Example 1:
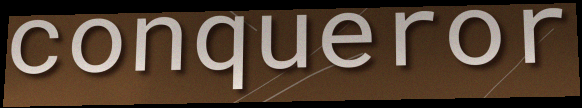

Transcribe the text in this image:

conqueror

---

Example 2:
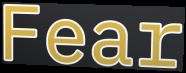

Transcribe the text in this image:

Fear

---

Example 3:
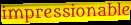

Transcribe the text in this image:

impressionable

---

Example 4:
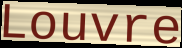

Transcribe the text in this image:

Louvre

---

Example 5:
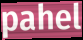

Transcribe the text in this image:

pahel